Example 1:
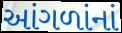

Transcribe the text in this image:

આંગળાંનાં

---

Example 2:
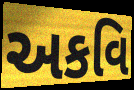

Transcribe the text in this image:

અકવિ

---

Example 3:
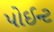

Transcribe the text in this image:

પોઈન્ટ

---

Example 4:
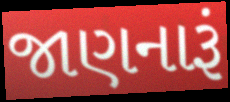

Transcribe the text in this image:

જાણનારૂં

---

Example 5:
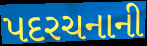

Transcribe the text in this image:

પદરચનાની